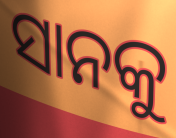
ସାନକୁ